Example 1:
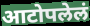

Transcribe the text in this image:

आटोपलेलं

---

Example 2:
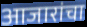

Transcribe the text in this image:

आजारांचा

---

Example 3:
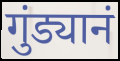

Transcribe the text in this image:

गुंड्यानं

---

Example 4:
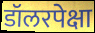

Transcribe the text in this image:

डॉलरपेक्षा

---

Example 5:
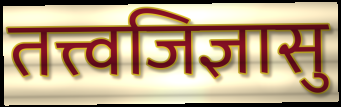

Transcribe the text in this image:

तत्त्वजिज्ञासु